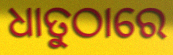
ଧାତୁଠାରେ